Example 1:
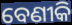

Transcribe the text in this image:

ବେଣୀକି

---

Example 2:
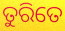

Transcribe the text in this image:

ତୁରିତେ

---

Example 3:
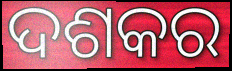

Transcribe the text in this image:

ଦଶକର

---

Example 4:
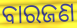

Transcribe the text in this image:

ବାରଜଣ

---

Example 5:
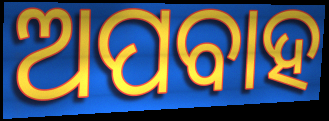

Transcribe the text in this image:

ଅପବାହ